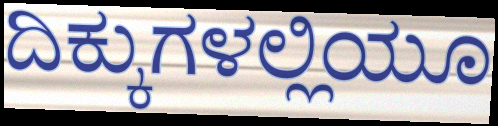
ದಿಕ್ಕುಗಳಲ್ಲಿಯೂ